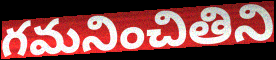
గమనించితిని